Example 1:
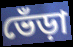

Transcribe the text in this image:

ভেঁড়া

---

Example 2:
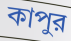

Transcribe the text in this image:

কাপুর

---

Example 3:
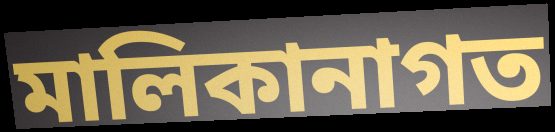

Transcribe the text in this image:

মালিকানাগত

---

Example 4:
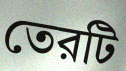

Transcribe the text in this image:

তেরটি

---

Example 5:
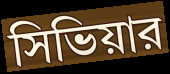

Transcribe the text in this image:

সিভিয়ার